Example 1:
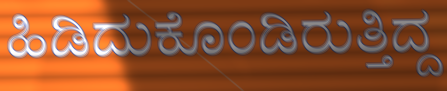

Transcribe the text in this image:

ಹಿಡಿದುಕೊಂಡಿರುತ್ತಿದ್ದ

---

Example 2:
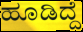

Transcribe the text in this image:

ಹೂಡಿದ್ದೆ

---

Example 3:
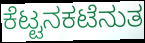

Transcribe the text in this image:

ಕೆಟ್ಟನಕಟೆನುತ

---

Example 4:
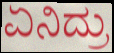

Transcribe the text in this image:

ಏನಿದ್ರು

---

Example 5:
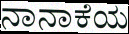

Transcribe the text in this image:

ನಾನಾಕೆಯ